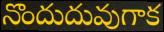
నొందుదువుగాక